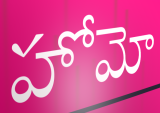
హోమో